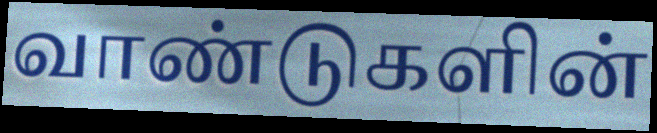
வாண்டுகளின்